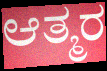
ಆತ್ಮರ